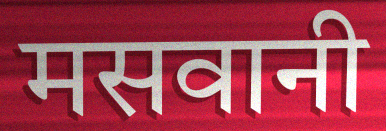
मसवानी